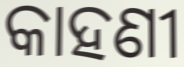
କାହଣୀ